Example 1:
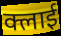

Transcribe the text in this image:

क्लाई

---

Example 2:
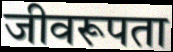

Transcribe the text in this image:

जीवरूपता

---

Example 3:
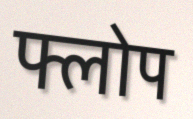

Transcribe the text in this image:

फ्लोप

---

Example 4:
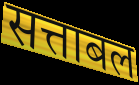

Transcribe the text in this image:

सत्ताबल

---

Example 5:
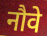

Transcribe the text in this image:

नौवे